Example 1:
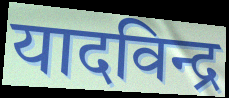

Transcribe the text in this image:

यादविन्द्र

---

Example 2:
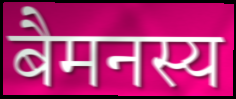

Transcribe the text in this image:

बैमनस्य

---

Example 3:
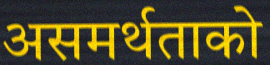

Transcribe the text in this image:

असमर्थताको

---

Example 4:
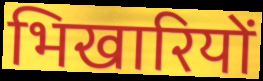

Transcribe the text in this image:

भिखारियों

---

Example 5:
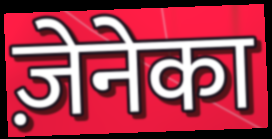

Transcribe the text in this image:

ज़ेनेका